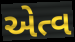
એત્વ